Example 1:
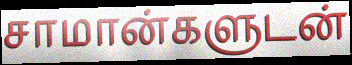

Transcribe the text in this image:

சாமான்களுடன்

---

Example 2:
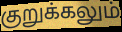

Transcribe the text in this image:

குறுக்கலும்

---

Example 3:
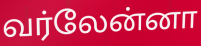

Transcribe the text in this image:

வர்லேன்னா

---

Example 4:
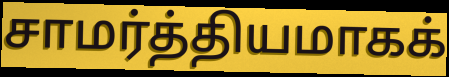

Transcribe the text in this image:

சாமர்த்தியமாகக்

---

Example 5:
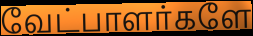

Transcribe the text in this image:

வேட்பாளர்களே